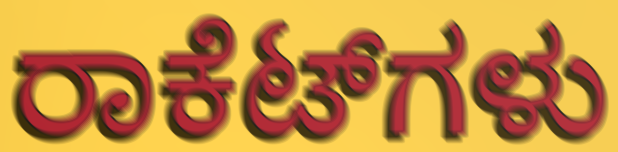
ರಾಕೆಟ್‌ಗಳು